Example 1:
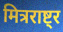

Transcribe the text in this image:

मित्रराष्ट्र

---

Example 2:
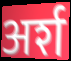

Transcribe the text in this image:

अर्श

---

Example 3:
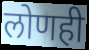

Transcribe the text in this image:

लोणही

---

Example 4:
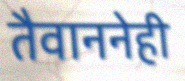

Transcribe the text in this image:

तैवाननेही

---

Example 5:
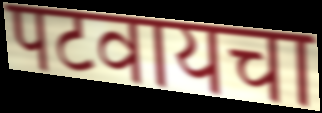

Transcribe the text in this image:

पटवायचा